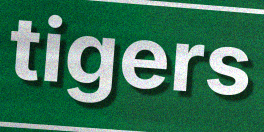
tigers